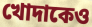
খোদাকেও